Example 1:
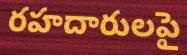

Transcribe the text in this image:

రహదారులపై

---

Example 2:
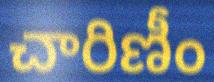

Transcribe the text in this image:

చారిణీం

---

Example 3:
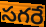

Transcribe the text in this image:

సగరే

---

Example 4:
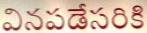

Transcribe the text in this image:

వినపడేసరికి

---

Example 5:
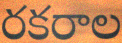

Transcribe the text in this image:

రకరాల